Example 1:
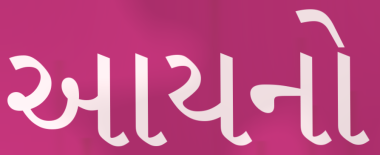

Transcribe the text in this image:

આયનો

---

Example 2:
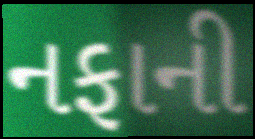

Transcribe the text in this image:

નફાની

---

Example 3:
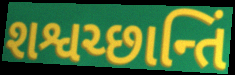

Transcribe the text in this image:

શશ્વચ્છાન્તિં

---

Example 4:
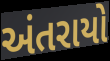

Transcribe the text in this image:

અંતરાયો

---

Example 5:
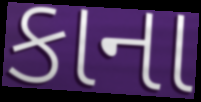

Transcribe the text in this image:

કાના